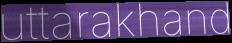
uttarakhand